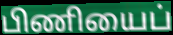
பிணியைப்